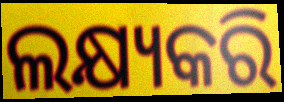
ଲକ୍ଷ୍ୟକରି